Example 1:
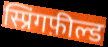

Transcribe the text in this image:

स्प्रिंगफ़ील्ड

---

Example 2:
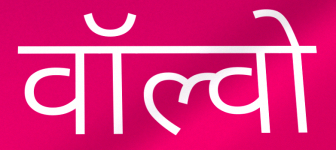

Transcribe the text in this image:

वॉल्वो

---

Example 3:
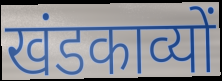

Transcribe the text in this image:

खंडकाव्यों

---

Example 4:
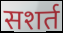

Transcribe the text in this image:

सशर्त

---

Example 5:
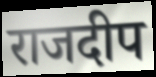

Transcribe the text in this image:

राजदीप